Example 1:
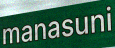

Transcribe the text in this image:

manasuni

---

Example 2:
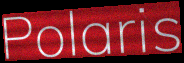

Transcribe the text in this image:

Polaris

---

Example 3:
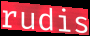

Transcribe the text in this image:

rudis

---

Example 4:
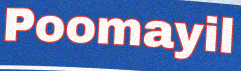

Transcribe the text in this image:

Poomayil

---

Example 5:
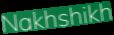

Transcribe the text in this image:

Nakhshikh